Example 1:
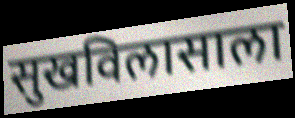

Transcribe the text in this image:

सुखविलासाला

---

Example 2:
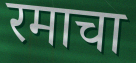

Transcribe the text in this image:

रमाचा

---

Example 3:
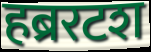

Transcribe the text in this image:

हब्ररटश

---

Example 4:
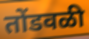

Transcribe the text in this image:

तोंडवळी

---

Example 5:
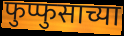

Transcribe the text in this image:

फुप्फुसाच्या